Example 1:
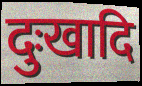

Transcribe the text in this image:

दुःखादि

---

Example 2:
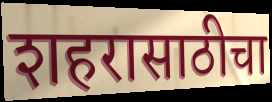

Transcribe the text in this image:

शहरासाठीचा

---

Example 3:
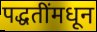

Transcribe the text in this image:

पद्धतींमधून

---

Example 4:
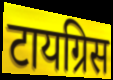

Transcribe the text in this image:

टायग्रिस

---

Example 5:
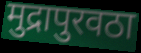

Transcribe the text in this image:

मुद्रापुरवठा